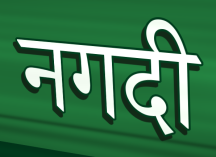
नगदी